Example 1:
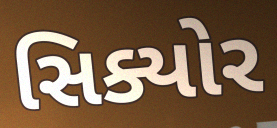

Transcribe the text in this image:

સિક્યોર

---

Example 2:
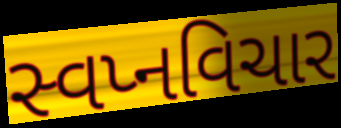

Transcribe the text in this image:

સ્વપ્નવિચાર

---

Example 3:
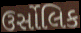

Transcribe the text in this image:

ઉર્સોલિક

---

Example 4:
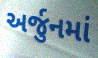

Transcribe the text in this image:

અર્જુનમાં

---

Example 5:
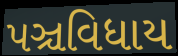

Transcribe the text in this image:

પઞ્ચવિધાય